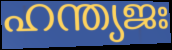
ഹന്ത്യജഃ